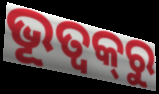
ଭୂତ୍ଵକ୍‌ରୁ